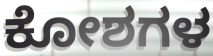
ಕೋಶಗಳ